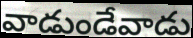
వాడుండేవాడు